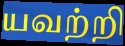
யவற்றி